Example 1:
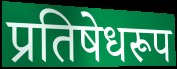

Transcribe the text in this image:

प्रतिषेधरूप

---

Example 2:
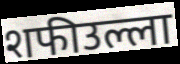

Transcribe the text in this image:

शफीउल्ला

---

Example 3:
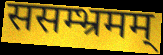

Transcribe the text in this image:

ससम्भ्रमम्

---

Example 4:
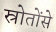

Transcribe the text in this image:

स्रोतोंसे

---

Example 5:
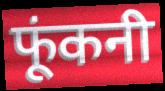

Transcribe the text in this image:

फूंकनी